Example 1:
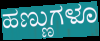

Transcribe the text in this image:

ಹಣ್ಣುಗಳೂ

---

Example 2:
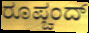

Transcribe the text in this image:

ರೂಪ್ಚಂದ್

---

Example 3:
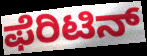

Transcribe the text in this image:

ಫೆರಿಟಿನ್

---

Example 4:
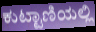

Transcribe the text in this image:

ಕುಟ್ಟಾಣಿಯಲ್ಲಿ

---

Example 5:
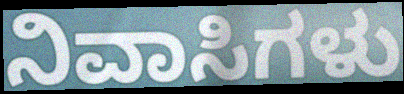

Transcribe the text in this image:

ನಿವಾಸಿಗಳು